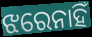
ଝରେନାହିଁ